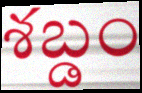
శబ్డం